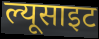
ल्यूसाइट